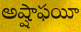
అష్షాఫయీ